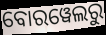
ବୋରୱେଲରୁ